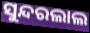
ସୁନ୍ଦରଲାଲ